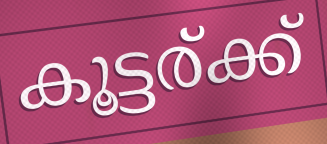
കൂട്ടര്ക്ക്